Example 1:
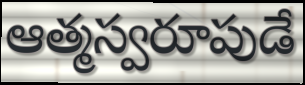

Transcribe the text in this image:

ఆత్మస్వరూపుడే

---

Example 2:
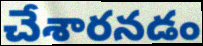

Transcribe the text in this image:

చేశారనడం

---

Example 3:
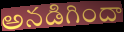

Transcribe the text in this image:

అనడిగిందా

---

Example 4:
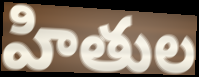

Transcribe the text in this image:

హితుల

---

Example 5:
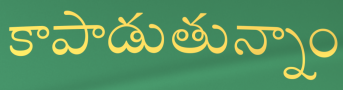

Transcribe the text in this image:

కాపాడుతున్నాం